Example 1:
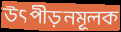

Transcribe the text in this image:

উৎপীড়নমূলক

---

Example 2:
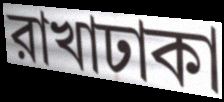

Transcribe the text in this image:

রাখাঢাকা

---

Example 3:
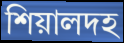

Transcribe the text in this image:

শিয়ালদহ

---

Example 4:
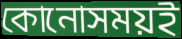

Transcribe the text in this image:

কোনোসময়ই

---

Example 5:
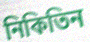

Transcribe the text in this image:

নিকিতিন